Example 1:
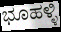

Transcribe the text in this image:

ಭೂಹಳ್ಳಿ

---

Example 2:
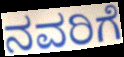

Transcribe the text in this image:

ನವರಿಗೆ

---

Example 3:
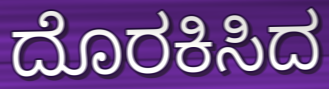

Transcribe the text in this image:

ದೊರಕಿಸಿದ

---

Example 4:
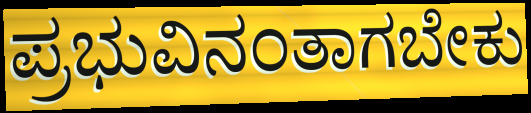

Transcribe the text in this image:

ಪ್ರಭುವಿನಂತಾಗಬೇಕು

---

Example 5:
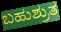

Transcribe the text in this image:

ಬಹುಶ್ರುತ